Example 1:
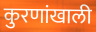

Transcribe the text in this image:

कुरणांखाली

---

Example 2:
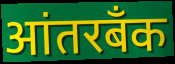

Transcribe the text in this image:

आंतरबँक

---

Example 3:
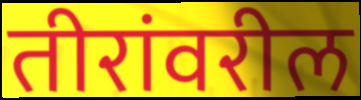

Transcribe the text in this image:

तीरांवरील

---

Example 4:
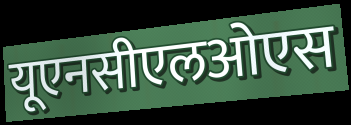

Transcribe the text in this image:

यूएनसीएलओएस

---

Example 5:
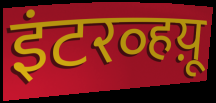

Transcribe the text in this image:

इंटरव्हय़ू